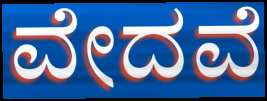
ವೇದವೆ